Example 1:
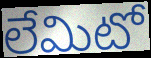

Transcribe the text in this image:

లేమిటో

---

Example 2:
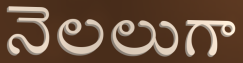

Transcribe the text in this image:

నెలలుగా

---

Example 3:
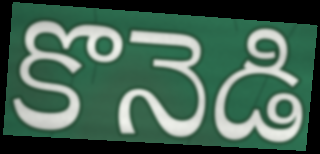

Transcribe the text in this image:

కొనెడి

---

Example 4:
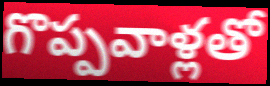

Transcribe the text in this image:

గొప్పవాళ్లతో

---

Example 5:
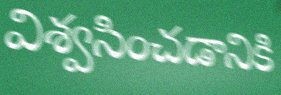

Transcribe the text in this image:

విశ్వసించడానికి